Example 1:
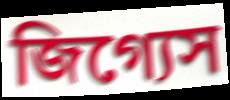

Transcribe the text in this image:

জিগ্যেস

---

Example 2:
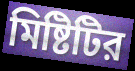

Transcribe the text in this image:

মিষ্টিটির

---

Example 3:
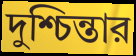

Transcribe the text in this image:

দুশ্চিন্তার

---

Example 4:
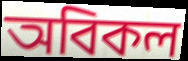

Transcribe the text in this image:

অবিকল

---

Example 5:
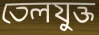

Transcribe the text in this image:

তেলযুক্ত